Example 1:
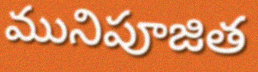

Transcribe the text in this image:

మునిపూజిత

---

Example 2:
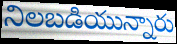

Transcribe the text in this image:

నిలబడియున్నారు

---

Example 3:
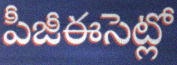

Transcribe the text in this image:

పీజీఈసెట్లో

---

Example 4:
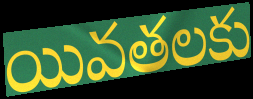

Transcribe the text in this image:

యివతలకు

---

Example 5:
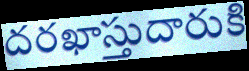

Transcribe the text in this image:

దరఖాస్తుదారుకి